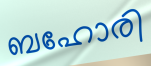
ബഹോരി